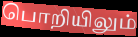
பொறியிலும்